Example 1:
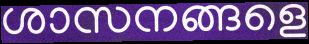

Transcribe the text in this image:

ശാസനങ്ങളെ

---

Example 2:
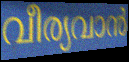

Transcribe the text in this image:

വീര്യവാൻ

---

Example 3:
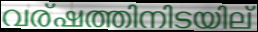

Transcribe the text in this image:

വര്ഷത്തിനിടയില്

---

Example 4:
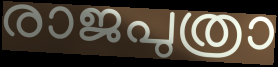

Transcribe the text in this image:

രാജപുത്രാ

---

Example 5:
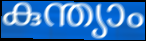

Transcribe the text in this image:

കുന്ത്യാം